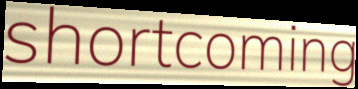
shortcoming